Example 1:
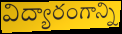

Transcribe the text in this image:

విద్యారంగాన్ని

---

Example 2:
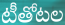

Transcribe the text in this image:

టీతోటల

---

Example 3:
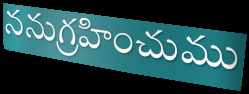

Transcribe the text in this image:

ననుగ్రహించుము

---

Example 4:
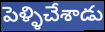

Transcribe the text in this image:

పెళ్ళిచేశాడు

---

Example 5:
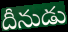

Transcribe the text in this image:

దీనుడు